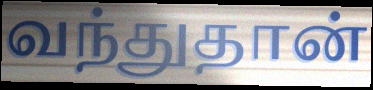
வந்துதான்